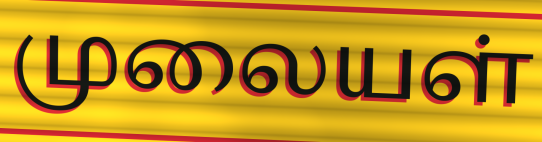
முலையள்